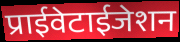
प्राईवेटाईजेशन